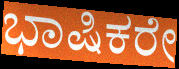
ಭಾಷಿಕರೇ